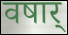
वषार्